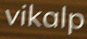
vikalp